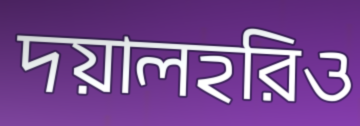
দয়ালহরিও